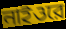
নাইওরে